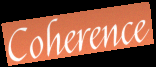
Coherence